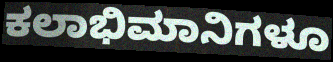
ಕಲಾಭಿಮಾನಿಗಳೂ